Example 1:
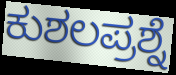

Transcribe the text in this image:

ಕುಶಲಪ್ರಶ್ನೆ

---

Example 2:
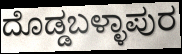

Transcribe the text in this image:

ದೊಡ್ಡಬಳ್ಳಾಪುರ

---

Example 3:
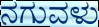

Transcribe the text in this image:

ನಗುವಳು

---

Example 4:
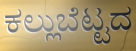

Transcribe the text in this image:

ಕಲ್ಲುಬೆಟ್ಟದ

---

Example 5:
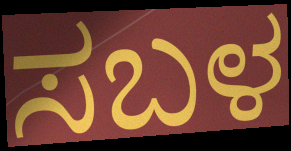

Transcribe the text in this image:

ಸಬಳ